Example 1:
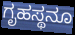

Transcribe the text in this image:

ಗೃಹಸ್ಥನೂ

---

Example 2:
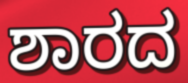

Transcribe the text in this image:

ಶಾರದ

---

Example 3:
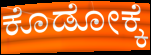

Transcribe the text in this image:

ಕೊಡೋಕ್ಕೆ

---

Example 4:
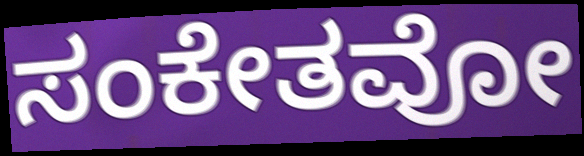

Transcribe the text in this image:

ಸಂಕೇತವೋ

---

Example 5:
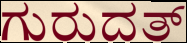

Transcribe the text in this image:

ಗುರುದತ್